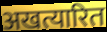
अखत्यारित